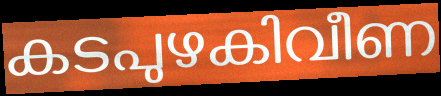
കടപുഴകിവീണ